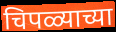
चिपळ्याच्या